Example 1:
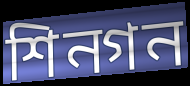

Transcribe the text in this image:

শিনগন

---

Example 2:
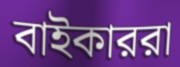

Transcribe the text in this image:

বাইকাররা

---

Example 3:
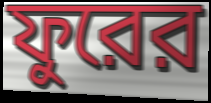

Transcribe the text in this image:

ফুরের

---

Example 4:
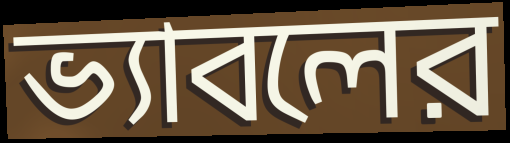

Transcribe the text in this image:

ভ্যাবলের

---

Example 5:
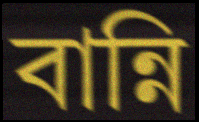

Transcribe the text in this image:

বান্নি